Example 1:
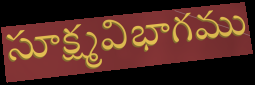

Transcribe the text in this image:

సూక్ష్మవిభాగము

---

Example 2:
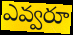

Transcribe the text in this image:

ఎవ్వరూ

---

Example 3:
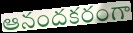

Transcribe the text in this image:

ఆనందకరంగా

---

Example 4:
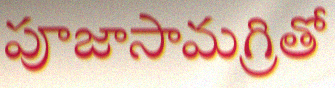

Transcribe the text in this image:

పూజాసామగ్రితో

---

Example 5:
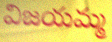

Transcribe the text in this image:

విజయమ్మ